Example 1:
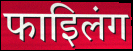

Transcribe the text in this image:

फाइिलंग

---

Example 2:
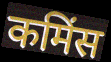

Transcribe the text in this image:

कमिंस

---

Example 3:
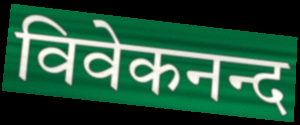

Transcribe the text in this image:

विवेकनन्द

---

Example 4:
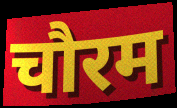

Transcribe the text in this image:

चौरम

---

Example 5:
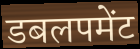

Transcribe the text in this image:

डबलपमेंट